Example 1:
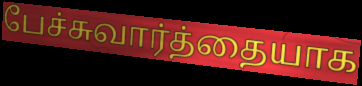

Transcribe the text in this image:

பேச்சுவார்த்தையாக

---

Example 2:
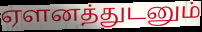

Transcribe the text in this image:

ஏளனத்துடனும்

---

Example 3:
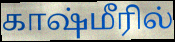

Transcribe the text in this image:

காஷ்மீரில்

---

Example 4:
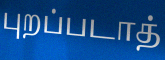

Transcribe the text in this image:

புறப்படாத்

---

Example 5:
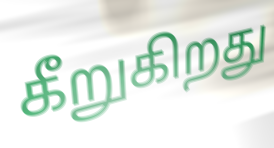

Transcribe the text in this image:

கீறுகிறது